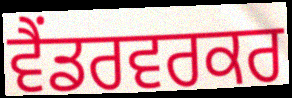
ਵੈਂਡਰਵਰਕਰ